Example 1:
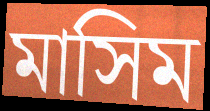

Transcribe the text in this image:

মাসিম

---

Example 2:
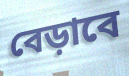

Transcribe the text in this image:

বেড়াবে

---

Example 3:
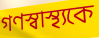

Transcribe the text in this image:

গণস্বাস্থ্যকে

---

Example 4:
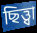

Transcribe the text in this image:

ছিত্ত্বা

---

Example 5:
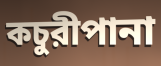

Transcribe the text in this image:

কচুরীপানা